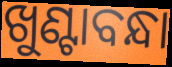
ଖୁଣ୍ଟାବନ୍ଧା